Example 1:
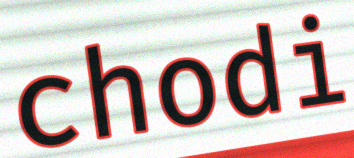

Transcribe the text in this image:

chodi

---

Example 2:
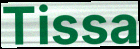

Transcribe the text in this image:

Tissa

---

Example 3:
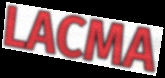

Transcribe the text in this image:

LACMA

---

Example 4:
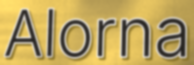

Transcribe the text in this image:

Alorna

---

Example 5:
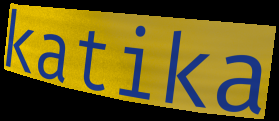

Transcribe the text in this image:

katika